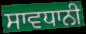
ਸਾਵਧਾਨੀ